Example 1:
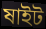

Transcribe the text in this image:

ষাইট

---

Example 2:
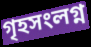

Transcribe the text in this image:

গৃহসংলগ্ন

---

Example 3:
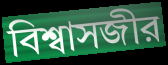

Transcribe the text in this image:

বিশ্বাসজীর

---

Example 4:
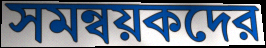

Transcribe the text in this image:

সমন্বয়কদের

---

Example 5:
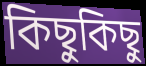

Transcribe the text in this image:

কিছুকিছু